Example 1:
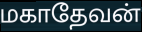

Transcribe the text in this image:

மகாதேவன்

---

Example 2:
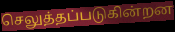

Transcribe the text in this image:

செலுத்தப்படுகின்றன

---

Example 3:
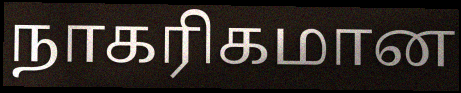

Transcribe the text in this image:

நாகரிகமான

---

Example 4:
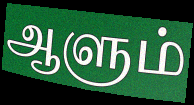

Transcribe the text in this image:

ஆளும்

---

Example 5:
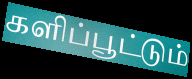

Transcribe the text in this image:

களிப்பூட்டும்